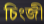
চিংজী